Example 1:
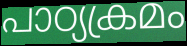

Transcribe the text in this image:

പാഠ്യക്രമം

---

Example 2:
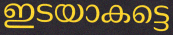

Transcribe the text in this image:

ഇടയാകട്ടെ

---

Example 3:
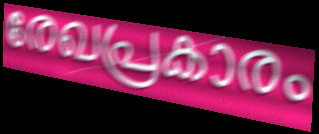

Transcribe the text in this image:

രേഖപ്രകാരം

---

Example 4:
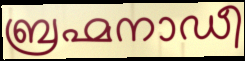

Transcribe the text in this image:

ബ്രഹ്മനാഡീ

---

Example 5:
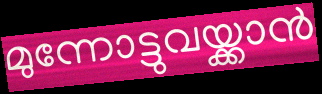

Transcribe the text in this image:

മുന്നോട്ടുവയ്ക്കാൻ